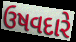
ઉષવદારે